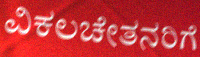
ವಿಕಲಚೇತನರಿಗೆ